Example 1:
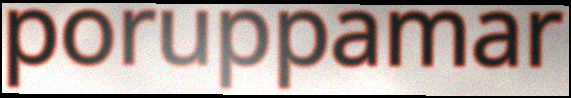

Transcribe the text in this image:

poruppamar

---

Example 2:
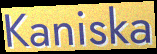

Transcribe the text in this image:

Kaniska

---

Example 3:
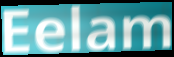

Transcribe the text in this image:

Eelam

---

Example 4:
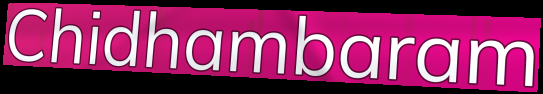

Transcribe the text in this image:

Chidhambaram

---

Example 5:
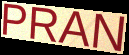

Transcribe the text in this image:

PRAN